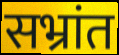
सभ्रांत